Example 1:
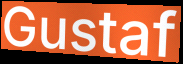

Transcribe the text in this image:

Gustaf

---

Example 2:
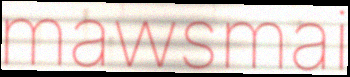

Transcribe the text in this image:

mawsmai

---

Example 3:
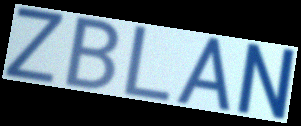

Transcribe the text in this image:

ZBLAN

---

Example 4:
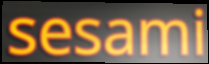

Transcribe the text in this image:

sesami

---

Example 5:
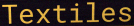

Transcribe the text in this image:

Textiles